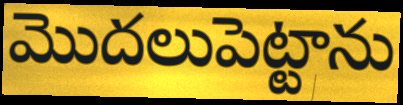
మొదలుపెట్టాను